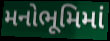
મનોભૂમિમાં